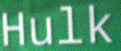
Hulk